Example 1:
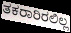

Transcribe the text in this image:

ತಕರಾರಿರಲಿಲ್ಲ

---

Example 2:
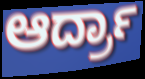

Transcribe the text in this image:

ಆರ್ದ್ರಾ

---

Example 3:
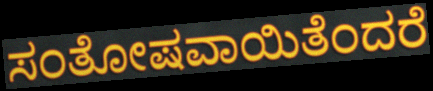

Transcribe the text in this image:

ಸಂತೋಷವಾಯಿತೆಂದರೆ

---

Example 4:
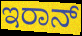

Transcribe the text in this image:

ಇರಾನ್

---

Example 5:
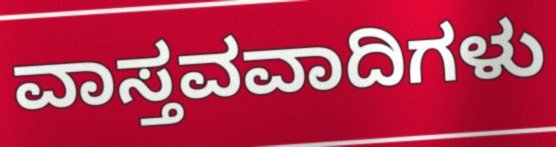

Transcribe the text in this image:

ವಾಸ್ತವವಾದಿಗಳು